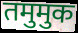
तमुमुक